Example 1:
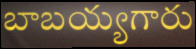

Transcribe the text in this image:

బాబయ్యగారు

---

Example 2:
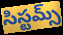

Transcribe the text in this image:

సిస్టమ్స్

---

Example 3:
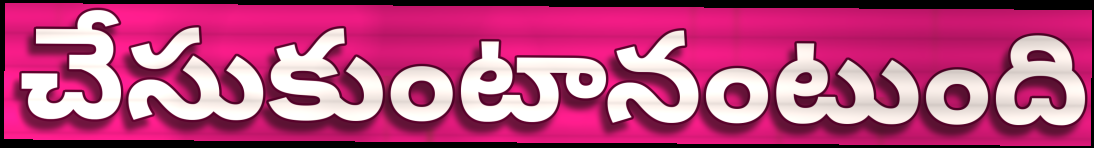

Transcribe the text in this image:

చేసుకుంటానంటుంది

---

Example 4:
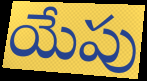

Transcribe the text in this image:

యేపు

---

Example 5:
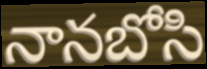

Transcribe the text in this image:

నానబోసి